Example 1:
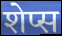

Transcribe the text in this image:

शेप्स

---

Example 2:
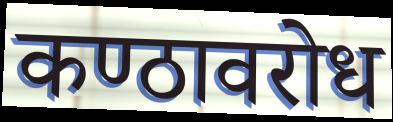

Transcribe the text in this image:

कण्ठावरोध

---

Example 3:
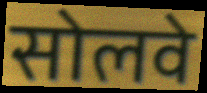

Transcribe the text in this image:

सोलवे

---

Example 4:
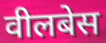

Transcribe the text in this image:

वीलबेस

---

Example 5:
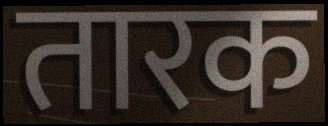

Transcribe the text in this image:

तारक